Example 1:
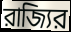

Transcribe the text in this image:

রাজ্যির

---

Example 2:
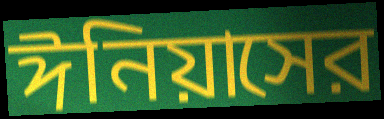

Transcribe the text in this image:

ঈনিয়াসের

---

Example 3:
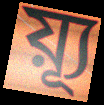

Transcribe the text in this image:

য়্যূ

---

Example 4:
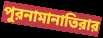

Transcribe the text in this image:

পুরনামানাতিরার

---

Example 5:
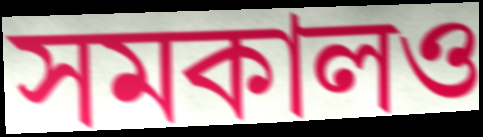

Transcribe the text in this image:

সমকালও